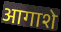
आगाशे